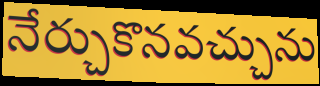
నేర్చుకొనవచ్చును